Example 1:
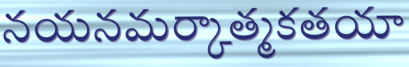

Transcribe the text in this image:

నయనమర్కాత్మకతయా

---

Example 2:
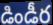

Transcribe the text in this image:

డిండీర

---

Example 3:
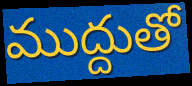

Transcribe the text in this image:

ముద్దుతో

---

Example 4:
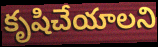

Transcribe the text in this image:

కృషిచేయాలని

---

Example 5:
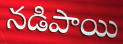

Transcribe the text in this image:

నడిపాయి